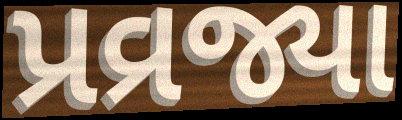
પ્રવ્રજ્યા